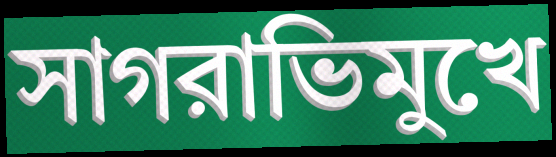
সাগরাভিমুখে